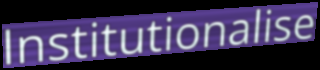
Institutionalise